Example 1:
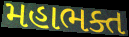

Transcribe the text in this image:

મહાભક્ત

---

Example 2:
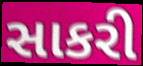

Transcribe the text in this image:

સાકરી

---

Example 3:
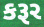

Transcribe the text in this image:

કરૂર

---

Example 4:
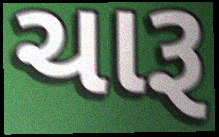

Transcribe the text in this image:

ચારૂ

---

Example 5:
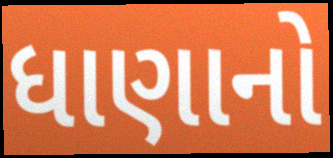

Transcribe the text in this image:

ધાણાનો